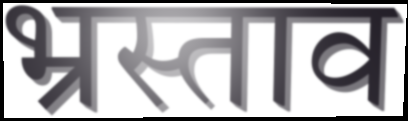
भ्रस्ताव